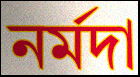
নৰ্মদা